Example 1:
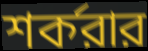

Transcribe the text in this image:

শর্করার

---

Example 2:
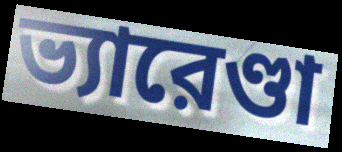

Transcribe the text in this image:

ভ্যারেণ্ডা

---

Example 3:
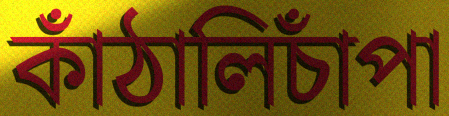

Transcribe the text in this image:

কাঁঠালিচাঁপা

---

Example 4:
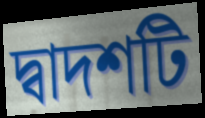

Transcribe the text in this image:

দ্বাদশটি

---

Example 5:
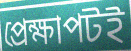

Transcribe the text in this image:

প্রেক্ষাপটই